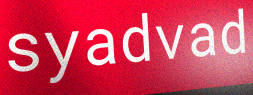
syadvad